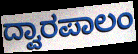
ದ್ವಾರಪಾಲಂ